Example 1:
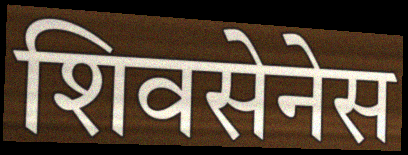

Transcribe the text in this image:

शिवसेनेस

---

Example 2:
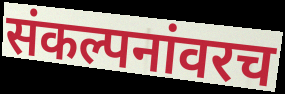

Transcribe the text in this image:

संकल्पनांवरच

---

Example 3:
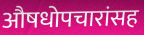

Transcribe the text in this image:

औषधोपचारांसह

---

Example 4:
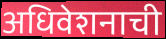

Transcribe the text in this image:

अधिवेशनाची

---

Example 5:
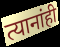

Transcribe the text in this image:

त्यानांही